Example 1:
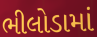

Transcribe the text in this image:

ભીલોડામાં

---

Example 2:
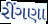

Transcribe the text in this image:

રીંગણા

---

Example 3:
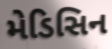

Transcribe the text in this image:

મેડિસિન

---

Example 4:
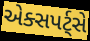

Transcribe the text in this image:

એક્સપર્ટ્સે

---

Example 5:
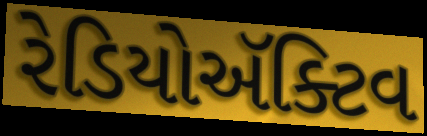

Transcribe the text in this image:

રેડિયોઍક્ટિવ